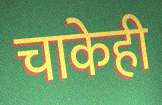
चाकेही